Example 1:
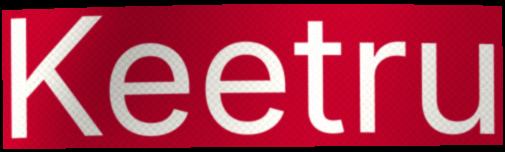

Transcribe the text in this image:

Keetru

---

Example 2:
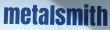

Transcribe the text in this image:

metalsmith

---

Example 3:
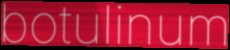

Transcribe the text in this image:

botulinum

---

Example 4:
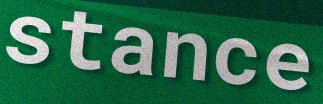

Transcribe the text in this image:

stance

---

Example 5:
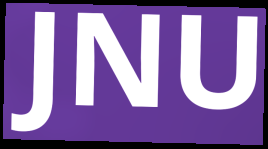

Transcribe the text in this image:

JNU